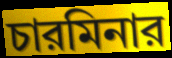
চারমিনার